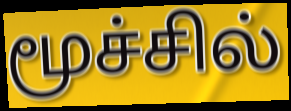
மூச்சில்